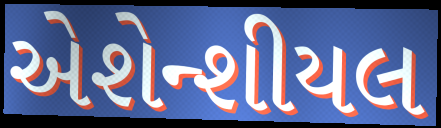
એશેન્શીયલ